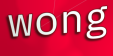
wong